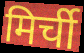
मिर्ची